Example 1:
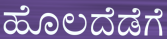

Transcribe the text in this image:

ಹೊಲದೆಡೆಗೆ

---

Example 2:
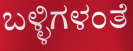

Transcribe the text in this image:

ಬಳ್ಳಿಗಳಂತೆ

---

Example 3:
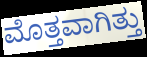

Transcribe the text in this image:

ಮೊತ್ತವಾಗಿತ್ತು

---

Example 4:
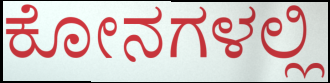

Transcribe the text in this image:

ಕೋನಗಳಲ್ಲಿ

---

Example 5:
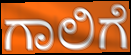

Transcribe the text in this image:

ಗಾಲಿಗೆ